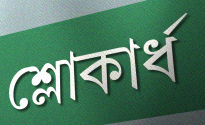
শ্লোকার্ধ